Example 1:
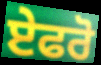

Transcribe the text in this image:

ਏਫਰੋ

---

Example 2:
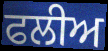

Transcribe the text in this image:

ਫਲੀਅ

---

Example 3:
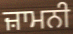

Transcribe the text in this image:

ਜ਼ਾਮਨੀ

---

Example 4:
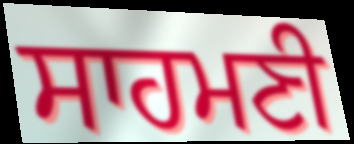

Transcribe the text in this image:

ਸਾਹਮਣੀ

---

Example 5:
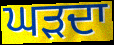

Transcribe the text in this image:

ਘੜਦਾ